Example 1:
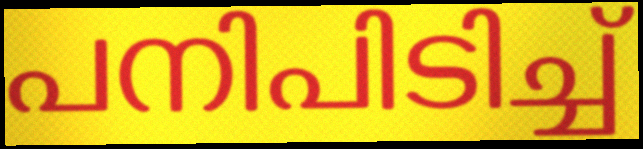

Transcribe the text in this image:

പനിപിടിച്ച്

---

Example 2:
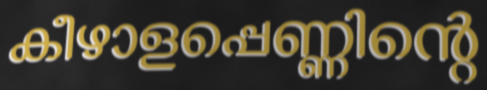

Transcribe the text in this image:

കീഴാളപ്പെണ്ണിന്റെ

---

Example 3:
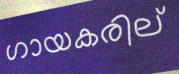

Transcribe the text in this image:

ഗായകരില്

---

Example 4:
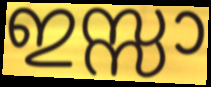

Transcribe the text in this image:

ഇസ്സാ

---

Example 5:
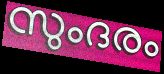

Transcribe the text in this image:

സുംദരം